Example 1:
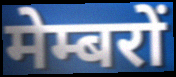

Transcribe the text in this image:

मेम्बरों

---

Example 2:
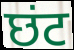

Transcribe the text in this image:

छंट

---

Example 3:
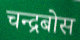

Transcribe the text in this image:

चन्द्रबोस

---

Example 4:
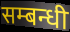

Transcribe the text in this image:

सम्बन्धी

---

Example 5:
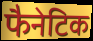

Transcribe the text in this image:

फैनेटिक